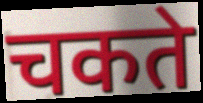
चकते